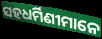
ସହଧର୍ମିଣୀମାନେ